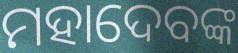
ମହାଦେବଙ୍କ